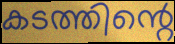
കടത്തിന്റെ